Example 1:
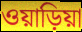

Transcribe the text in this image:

ওয়াড়িয়া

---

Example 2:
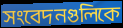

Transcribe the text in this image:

সংবেদনগুলিকে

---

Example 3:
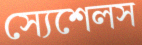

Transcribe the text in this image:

স্যেশেলস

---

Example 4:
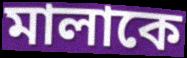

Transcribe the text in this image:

মালাকে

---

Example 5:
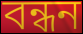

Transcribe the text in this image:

বন্ধন